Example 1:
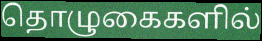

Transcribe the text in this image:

தொழுகைகளில்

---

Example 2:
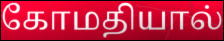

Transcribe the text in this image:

கோமதியால்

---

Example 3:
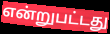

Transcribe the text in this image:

என்றுபட்டது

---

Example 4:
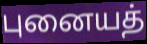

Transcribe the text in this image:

புனையத்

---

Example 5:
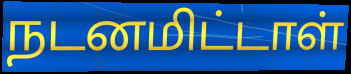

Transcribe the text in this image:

நடனமிட்டாள்